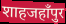
शाहजहाँपुर